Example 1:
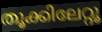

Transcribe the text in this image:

തൂക്കിലേറ്റൂ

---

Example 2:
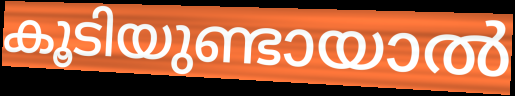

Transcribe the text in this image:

കൂടിയുണ്ടായാൽ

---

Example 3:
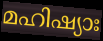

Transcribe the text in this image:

മഹിഷ്യാഃ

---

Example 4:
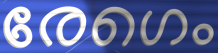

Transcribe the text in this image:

രേഗെം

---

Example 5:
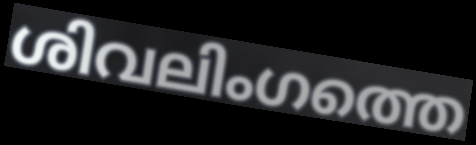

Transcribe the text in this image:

ശിവലിംഗത്തെ